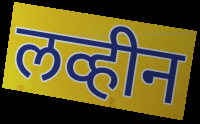
लव्हीन